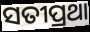
ସତୀପ୍ରଥା